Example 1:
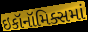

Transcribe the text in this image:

ઇકૉનૉમિક્સમાં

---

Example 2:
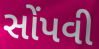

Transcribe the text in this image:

સોંપવી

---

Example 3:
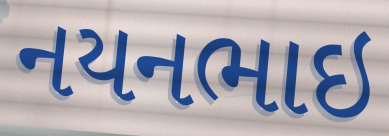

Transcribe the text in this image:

નયનભાઇ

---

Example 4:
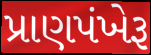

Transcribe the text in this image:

પ્રાણપંખેરૂ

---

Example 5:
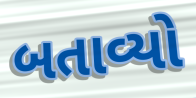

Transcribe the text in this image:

બતાવ્યો